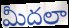
మీదలా